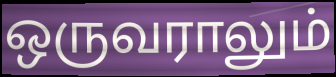
ஒருவராலும்